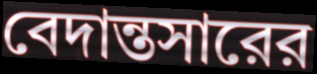
বেদান্তসারের